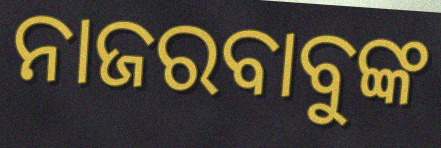
ନାଜରବାବୁଙ୍କ